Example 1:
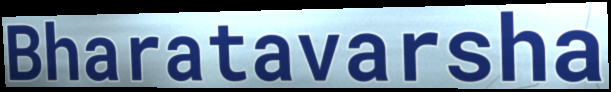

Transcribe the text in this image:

Bharatavarsha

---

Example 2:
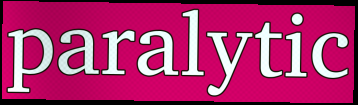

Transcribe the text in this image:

paralytic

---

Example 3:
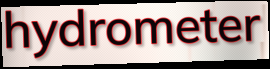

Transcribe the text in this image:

hydrometer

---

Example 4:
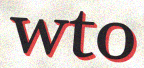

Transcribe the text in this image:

wto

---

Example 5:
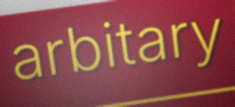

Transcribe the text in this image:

arbitary